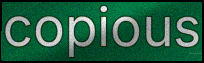
copious